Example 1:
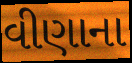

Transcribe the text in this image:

વીણાના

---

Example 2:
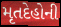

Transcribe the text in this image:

મૃતદેહોની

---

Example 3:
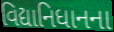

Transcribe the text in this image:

વિદ્યાનિધાનના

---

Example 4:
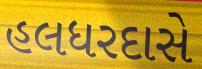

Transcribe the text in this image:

હલધરદાસે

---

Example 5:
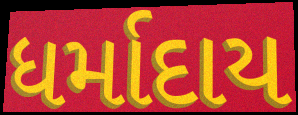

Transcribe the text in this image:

ધર્માદાય